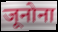
जूनोना